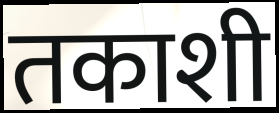
तकाशी